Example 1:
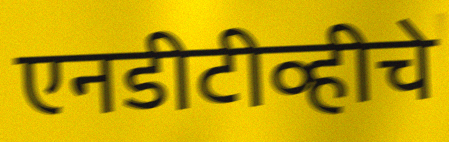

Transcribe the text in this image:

एनडीटीव्हीचे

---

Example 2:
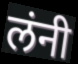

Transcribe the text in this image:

लंनी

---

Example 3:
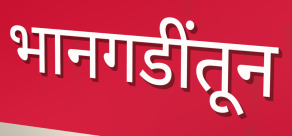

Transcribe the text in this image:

भानगडींतून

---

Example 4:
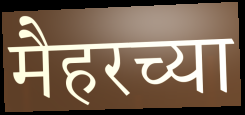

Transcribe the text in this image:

मैहरच्या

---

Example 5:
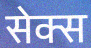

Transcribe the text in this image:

सेक्स